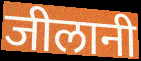
जीलानी